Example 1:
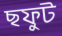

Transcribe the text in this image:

ছফুট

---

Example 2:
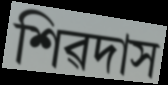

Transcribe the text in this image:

শিৱদাস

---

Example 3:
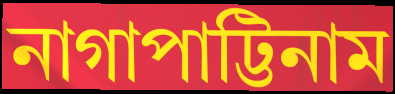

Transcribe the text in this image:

নাগাপাট্টিনাম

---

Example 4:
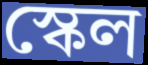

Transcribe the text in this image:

স্কেল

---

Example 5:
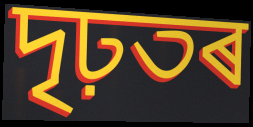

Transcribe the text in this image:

দৃঢ়তৰ